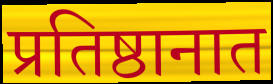
प्रतिष्ठानात